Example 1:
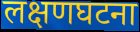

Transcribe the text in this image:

लक्षणघटना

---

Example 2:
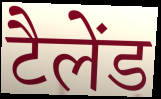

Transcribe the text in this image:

टैलेंड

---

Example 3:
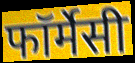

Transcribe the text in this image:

फॉर्मेसी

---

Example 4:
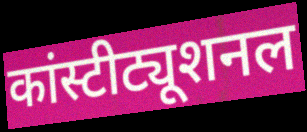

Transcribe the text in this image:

कांस्टीट्यूशनल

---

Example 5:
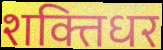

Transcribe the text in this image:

शक्तिधर